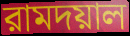
রামদয়াল